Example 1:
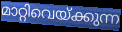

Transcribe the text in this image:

മാറ്റിവെയ്ക്കുന്ന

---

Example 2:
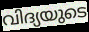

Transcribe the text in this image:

വിദ്യയുടെ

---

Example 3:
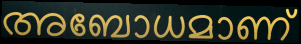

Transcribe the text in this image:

അബോധമാണ്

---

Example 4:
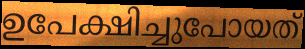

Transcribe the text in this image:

ഉപേക്ഷിച്ചുപോയത്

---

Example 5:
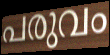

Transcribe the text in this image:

പരുവം